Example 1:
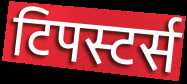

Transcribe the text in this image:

टिपस्टर्स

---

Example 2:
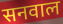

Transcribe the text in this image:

सनवाल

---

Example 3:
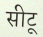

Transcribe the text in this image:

सीटू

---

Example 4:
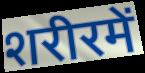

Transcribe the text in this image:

शरीरमें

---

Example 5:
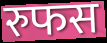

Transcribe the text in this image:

रुफस